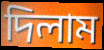
দিলাম